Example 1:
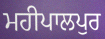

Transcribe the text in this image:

ਮਹੀਪਾਲਪੁਰ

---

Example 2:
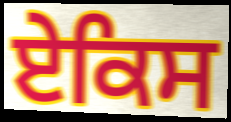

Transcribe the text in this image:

ਏਕਿਸ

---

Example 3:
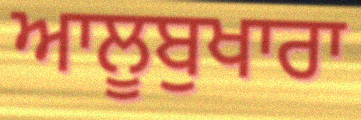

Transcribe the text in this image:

ਆਲੂਬੁਖਾਰਾ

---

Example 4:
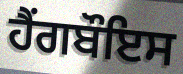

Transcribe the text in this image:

ਹੈਂਗਬੌਇਸ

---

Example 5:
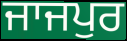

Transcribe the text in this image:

ਜਾਜਪੁਰ